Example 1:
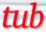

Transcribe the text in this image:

tub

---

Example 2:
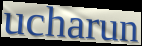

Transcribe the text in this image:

ucharun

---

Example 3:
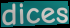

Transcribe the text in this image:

dices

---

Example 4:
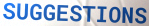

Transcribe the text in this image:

SUGGESTIONS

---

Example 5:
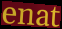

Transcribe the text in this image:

enat